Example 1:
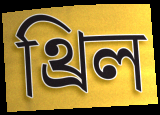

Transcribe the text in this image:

থ্রিল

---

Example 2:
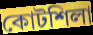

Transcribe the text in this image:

কোটশিলা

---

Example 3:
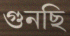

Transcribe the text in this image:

গুনছি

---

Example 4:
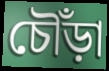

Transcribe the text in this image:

চৌঁড়া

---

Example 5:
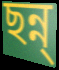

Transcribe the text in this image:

ছন্ন্